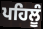
ਪਹਿਲੂੰ